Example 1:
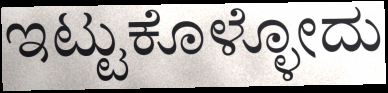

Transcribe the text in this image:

ಇಟ್ಟುಕೊಳ್ಳೋದು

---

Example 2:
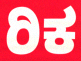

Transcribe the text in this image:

ರಿಕ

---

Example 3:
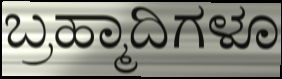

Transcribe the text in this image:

ಬ್ರಹ್ಮಾದಿಗಳೂ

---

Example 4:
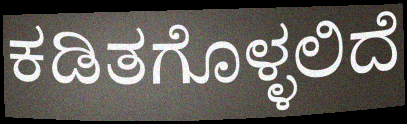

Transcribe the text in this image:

ಕಡಿತಗೊಳ್ಳಲಿದೆ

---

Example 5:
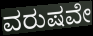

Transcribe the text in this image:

ವರುಷವೇ